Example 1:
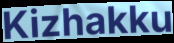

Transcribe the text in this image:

Kizhakku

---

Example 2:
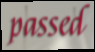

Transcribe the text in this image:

passed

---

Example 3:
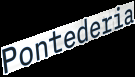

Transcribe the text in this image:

Pontederia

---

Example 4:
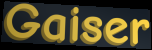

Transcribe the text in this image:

Gaiser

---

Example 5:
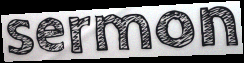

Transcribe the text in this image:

sermon